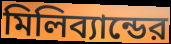
মিলিব্যান্ডের